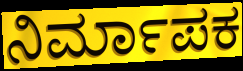
ನಿರ್ಮಾಪಕ